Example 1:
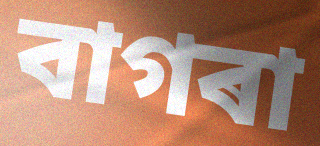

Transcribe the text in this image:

বাগৰা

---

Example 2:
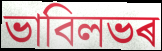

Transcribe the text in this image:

ভাবিলভৰ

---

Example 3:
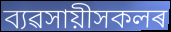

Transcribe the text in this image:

ব্যৱসায়ীসকলৰ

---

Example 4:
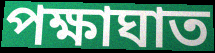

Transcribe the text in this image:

পক্ষাঘাত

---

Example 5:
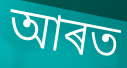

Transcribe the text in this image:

আৰত